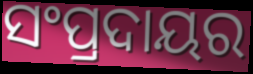
ସଂପ୍ରଦାୟର